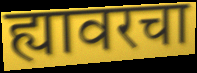
ह्यावरचा